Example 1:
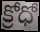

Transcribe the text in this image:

క్రోధో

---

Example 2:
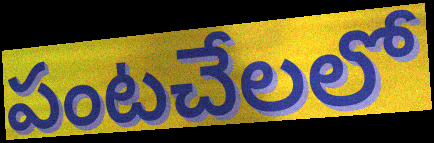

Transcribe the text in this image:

పంటచేలలో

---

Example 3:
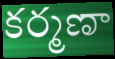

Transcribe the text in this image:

కర్మణా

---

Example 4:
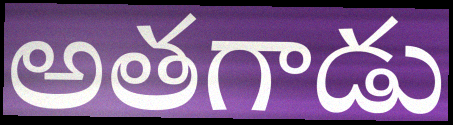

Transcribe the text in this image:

అతగాడు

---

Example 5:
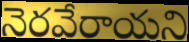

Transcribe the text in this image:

నెరవేరాయని